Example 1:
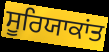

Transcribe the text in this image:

ਸੂਰਿਯਾਕਾਂਤ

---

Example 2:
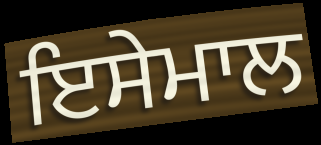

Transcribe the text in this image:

ਇਸੇਮਾਲ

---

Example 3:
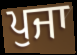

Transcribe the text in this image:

ਪੁਜਾ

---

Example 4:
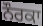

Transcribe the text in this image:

ਨੌਰਕਾ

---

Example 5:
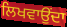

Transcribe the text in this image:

ਲਿਖਵਾਉਂਦਾ